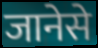
जानेसे